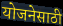
योजनेसाठी